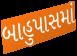
બાહુપાસમાં